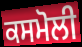
ਕਸਮੋਲੀ